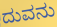
ದುವನು